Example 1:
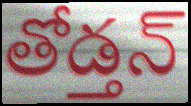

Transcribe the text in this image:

తోడ్తన్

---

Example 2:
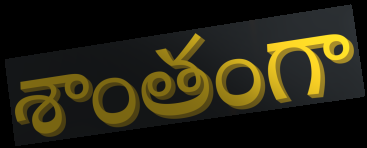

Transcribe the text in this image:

శాంతంగా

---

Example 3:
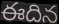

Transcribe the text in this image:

ఈదిన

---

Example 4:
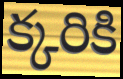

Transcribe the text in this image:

క్కరికి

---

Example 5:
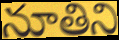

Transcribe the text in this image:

నూతిని